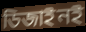
ডিজাইনই